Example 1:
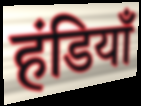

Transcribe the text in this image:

हंडियाँ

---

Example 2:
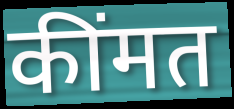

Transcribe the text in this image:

कींमत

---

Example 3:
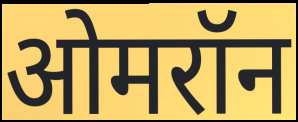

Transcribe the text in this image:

ओमरॉन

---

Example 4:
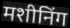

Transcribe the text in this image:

मशीनिंग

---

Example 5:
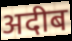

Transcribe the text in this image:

अदीब